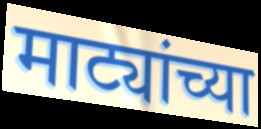
माट्यांच्या